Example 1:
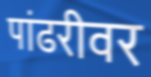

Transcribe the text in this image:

पांढरीवर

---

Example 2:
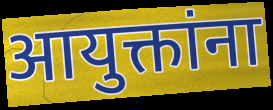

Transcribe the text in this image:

आयुक्तांना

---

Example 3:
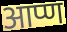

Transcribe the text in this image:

आप्ण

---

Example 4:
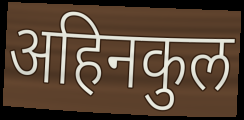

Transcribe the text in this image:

अहिनकुल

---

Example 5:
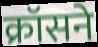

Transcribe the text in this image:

क्रॉसने